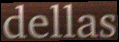
dellas